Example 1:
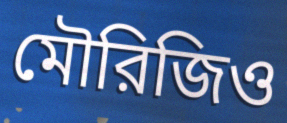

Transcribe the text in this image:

মৌরিজিও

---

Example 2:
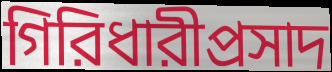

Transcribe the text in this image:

গিরিধারীপ্রসাদ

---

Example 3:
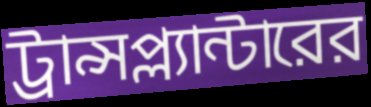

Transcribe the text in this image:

ট্রান্সপ্ল্যান্টারের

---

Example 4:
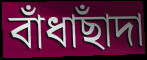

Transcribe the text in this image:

বাঁধাছাঁদা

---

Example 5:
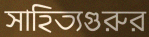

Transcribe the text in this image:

সাহিত্যগুরুর